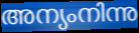
അന്യംനിന്നു